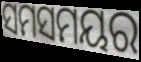
ସମସମୟର